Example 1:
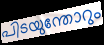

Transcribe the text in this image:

പിടയുന്തോറും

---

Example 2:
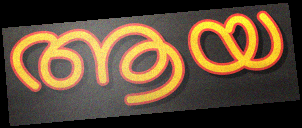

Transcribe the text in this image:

ആയ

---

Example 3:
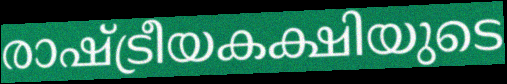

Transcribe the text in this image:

രാഷ്ട്രീയകക്ഷിയുടെ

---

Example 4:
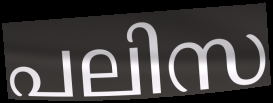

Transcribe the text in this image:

പലിസ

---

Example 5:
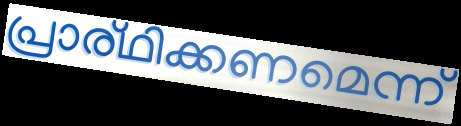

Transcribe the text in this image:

പ്രാര്ഥിക്കണമെന്ന്